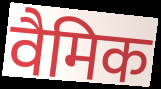
वैमिक